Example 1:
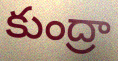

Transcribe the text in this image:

కుంద్రా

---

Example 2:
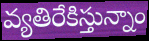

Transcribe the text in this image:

వ్యతిరేకిస్తున్నాం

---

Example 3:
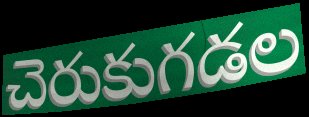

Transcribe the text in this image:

చెరుకుగడల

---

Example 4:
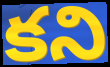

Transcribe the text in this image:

కని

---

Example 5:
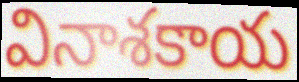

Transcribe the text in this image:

వినాశకాయ